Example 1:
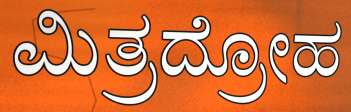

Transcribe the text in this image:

ಮಿತ್ರದ್ರೋಹ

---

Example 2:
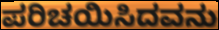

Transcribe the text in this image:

ಪರಿಚಯಿಸಿದವನು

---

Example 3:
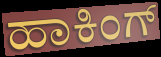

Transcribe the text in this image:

ಹಾಕಿಂಗ್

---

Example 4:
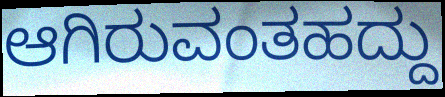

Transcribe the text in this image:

ಆಗಿರುವಂತಹದ್ದು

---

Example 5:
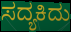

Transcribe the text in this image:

ಸದ್ಯಕಿದು